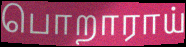
பொறாராய்